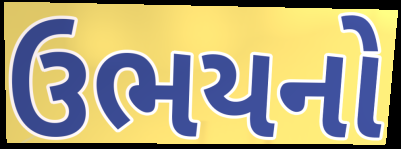
ઉભયનો